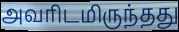
அவரிடமிருந்தது